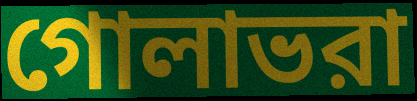
গোলাভরা